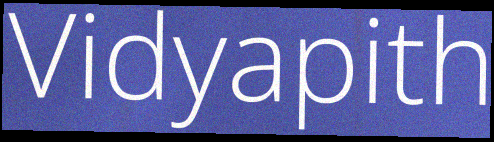
Vidyapith